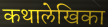
कथालेखिका